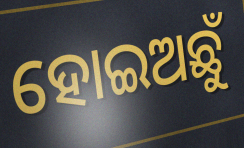
ହୋଇଅଛୁଁ